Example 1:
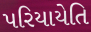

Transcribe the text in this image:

પરિયાયેતિ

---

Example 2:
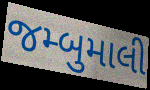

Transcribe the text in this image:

જમ્બુમાલી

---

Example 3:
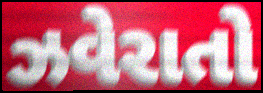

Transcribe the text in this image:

ઝવેરાતો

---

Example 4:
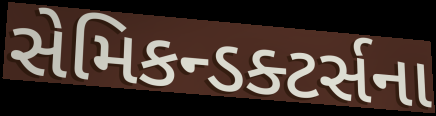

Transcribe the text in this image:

સેમિકન્ડક્ટર્સના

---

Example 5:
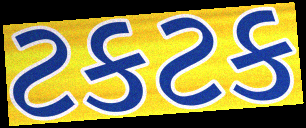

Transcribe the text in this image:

ટકટક